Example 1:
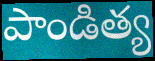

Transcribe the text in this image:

పాండిత్య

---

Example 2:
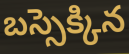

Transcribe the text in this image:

బస్సెక్కిన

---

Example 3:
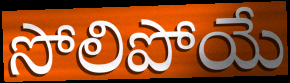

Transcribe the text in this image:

సోలిపోయే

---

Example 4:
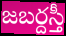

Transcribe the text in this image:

జబర్దస్తీ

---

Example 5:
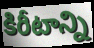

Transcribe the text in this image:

కిరీటాన్ని